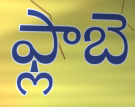
ఫ్లాబె